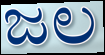
ಜಲ